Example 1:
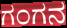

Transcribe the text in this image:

ಗಂಗನ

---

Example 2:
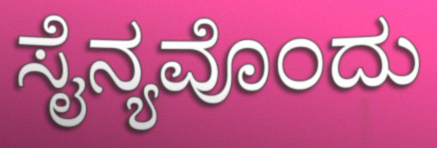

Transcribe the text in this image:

ಸೈನ್ಯವೊಂದು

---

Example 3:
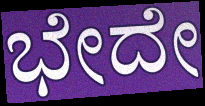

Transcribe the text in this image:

ಭೇದೇ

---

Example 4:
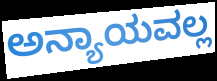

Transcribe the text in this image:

ಅನ್ಯಾಯವಲ್ಲ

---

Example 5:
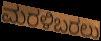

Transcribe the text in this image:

ಮರಳಿಬರಲು